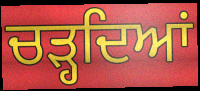
ਚੜ੍ਹਦਿਆਂ